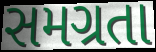
સમગ્રતા